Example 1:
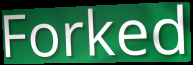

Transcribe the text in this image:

Forked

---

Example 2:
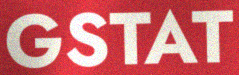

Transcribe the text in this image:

GSTAT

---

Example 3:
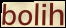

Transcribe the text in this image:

bolih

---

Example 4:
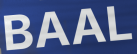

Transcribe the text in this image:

BAAL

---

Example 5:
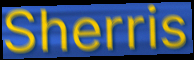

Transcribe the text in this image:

Sherris